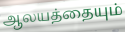
ஆலயத்தையும்